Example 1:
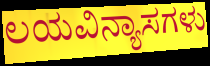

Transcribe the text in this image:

ಲಯವಿನ್ಯಾಸಗಳು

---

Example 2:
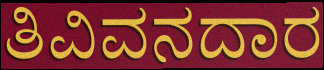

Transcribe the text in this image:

ತಿವಿವನದಾರ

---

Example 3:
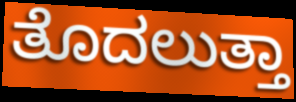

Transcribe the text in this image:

ತೊದಲುತ್ತಾ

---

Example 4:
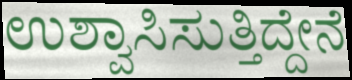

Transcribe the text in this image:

ಉಶ್ವಾಸಿಸುತ್ತಿದ್ದೇನೆ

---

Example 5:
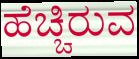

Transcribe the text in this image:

ಹೆಚ್ಚಿರುವ